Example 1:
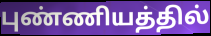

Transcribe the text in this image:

புண்ணியத்தில்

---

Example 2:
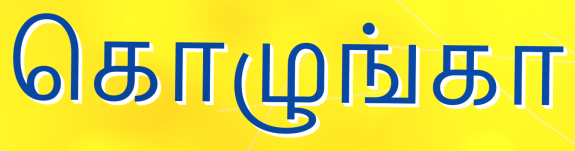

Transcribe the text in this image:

கொழுங்கா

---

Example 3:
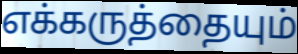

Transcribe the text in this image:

எக்கருத்தையும்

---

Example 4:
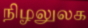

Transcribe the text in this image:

நிழலுலக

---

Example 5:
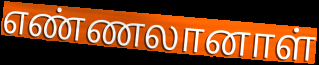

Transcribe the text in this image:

எண்ணலானாள்